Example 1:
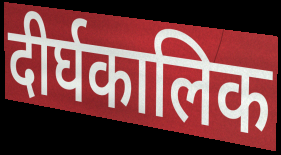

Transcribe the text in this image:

दीर्घकालिक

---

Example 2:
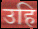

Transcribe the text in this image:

उहि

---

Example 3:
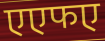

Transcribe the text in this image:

एएफए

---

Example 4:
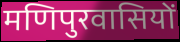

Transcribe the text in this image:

मणिपुरवासियों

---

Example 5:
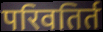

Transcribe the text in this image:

परिवतिर्त